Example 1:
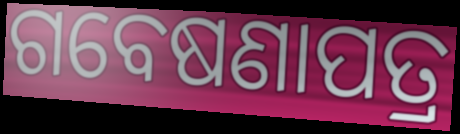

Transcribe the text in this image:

ଗବେଷଣାପତ୍ର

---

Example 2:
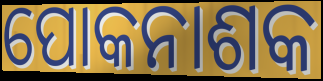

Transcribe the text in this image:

ପୋକନାଶକ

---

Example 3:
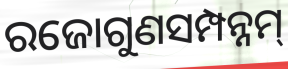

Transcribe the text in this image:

ରଜୋଗୁଣସମ୍ପନ୍ନମ୍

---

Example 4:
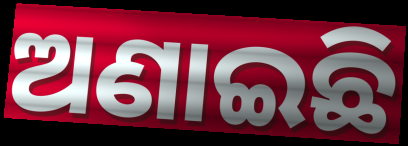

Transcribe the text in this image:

ଅଣାଇଛି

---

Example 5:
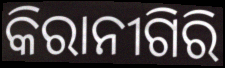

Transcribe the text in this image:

କିରାନୀଗିରି